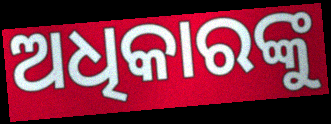
ଅଧିକାରଙ୍କୁ